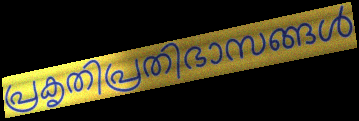
പ്രകൃതിപ്രതിഭാസങ്ങൾ